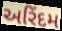
અરિંદમ